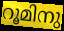
റൂമിനു